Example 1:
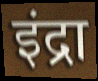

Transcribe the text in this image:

इंद्रा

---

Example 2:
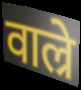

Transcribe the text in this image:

वाल्रे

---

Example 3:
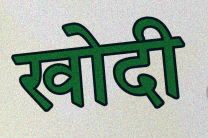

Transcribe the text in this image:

खोदी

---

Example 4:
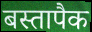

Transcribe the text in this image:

बस्तापैक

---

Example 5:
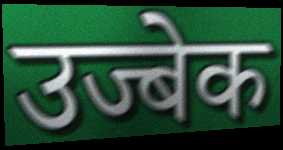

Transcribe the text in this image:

उज्बेक